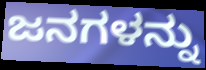
ಜನಗಳನ್ನು